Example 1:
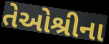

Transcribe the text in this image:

તેઓશ્રીના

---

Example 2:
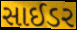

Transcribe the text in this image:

સાઈડર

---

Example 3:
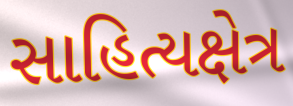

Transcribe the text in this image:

સાહિત્યક્ષેત્ર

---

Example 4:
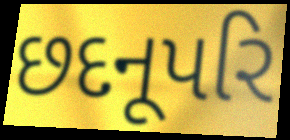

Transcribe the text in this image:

છદનૂપરિ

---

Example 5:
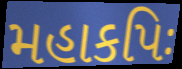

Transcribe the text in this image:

મહાકપિઃ